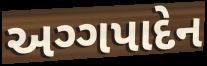
અગ્ગપાદેન